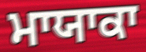
ਮਾਯਾਕਾ